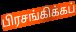
பிரசங்கிக்கப்